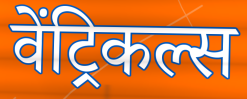
वेंट्रिकल्स